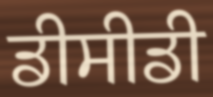
ਡੀਸੀਡੀ